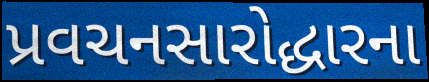
પ્રવચનસારોદ્ધારના